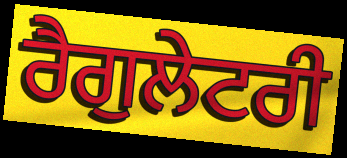
ਰੈਗੁਲੇਟਰੀ